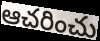
ఆచరించు